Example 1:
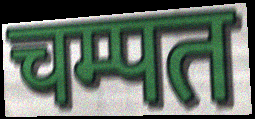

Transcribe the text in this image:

चम्पत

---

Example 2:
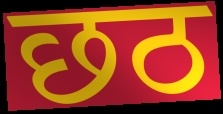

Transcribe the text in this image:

छठ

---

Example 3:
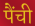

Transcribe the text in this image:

पैंची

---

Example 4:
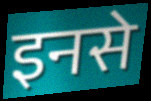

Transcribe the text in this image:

इनसे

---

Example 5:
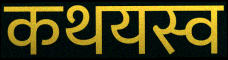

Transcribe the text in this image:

कथयस्व